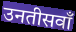
उनतीसवाँ